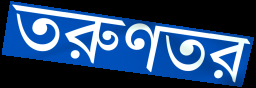
তরুণতর